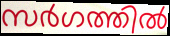
സർഗത്തിൽ